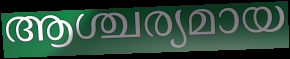
ആശ്ചര്യമായ